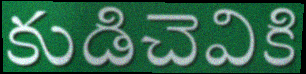
కుడిచెవికి